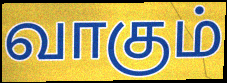
வாகும்